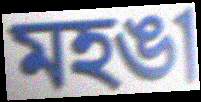
মহঙা